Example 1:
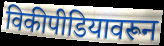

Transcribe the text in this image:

विकीपीडियावरून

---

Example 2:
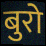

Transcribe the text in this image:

बुरो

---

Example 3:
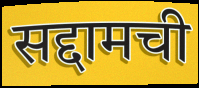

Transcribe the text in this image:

सद्दामची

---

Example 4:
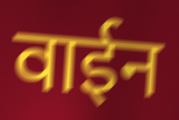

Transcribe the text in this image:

वाईन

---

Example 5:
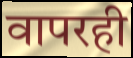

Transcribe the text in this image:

वापरही